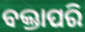
ବକ୍ତାପରି